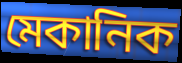
মেকানিক